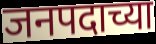
जनपदाच्या